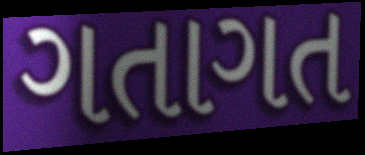
ગતાગત